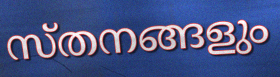
സ്തനങ്ങളും